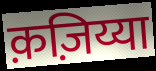
क़ज़िय्या